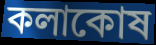
কলাকোষ